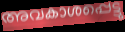
അവകാശപ്പെട്ടു